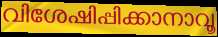
വിശേഷിപ്പിക്കാനാവൂ